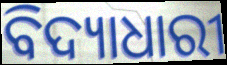
ବିଦ୍ୟାଧାରୀ